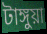
টাঙ্গুয়া